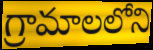
గ్రామాలలోని